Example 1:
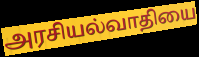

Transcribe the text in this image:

அரசியல்வாதியை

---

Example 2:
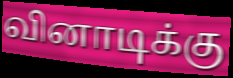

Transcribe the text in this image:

வினாடிக்கு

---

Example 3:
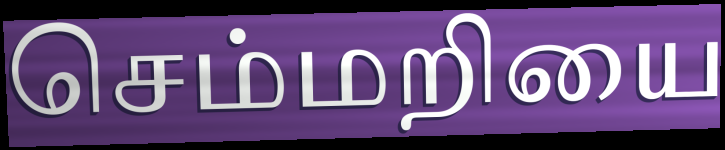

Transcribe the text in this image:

செம்மறியை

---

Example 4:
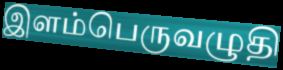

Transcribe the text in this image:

இளம்பெருவழுதி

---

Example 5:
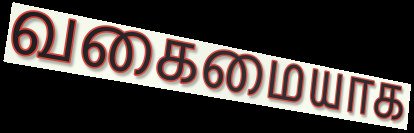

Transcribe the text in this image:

வகைமையாக